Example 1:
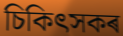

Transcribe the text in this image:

চিকিৎসকৰ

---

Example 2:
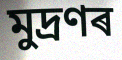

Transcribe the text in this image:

মুদ্ৰণৰ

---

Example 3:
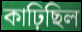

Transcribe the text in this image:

কাঢ়িছিল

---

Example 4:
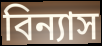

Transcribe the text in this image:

বিন্যাস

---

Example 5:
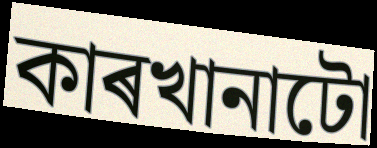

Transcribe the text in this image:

কাৰখানাটো